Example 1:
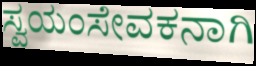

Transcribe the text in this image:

ಸ್ವಯಂಸೇವಕನಾಗಿ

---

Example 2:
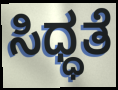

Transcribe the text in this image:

ಸಿಧ್ಧತೆ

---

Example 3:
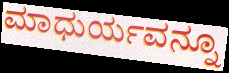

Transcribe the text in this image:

ಮಾಧುರ್ಯವನ್ನೂ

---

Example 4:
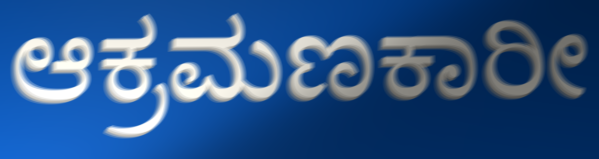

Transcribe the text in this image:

ಆಕ್ರಮಣಕಾರೀ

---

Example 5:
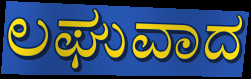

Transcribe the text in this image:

ಲಘುವಾದ